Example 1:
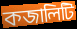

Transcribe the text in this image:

কজালিটি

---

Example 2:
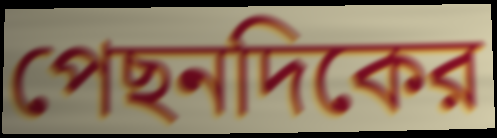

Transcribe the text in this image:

পেছনদিকের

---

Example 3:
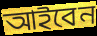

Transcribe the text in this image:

আইবেন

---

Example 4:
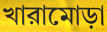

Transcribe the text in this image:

খারামোড়া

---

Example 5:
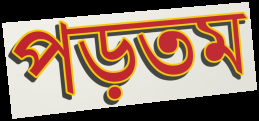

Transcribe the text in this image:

পড়তম